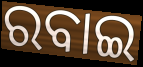
ରବାଇ